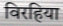
विरहिया